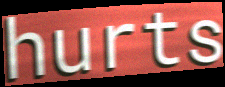
hurts